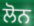
ਲੋਨ